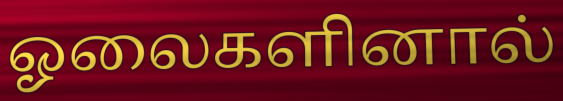
ஓலைகளினால்